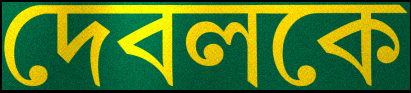
দেবলকে